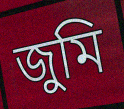
জুমি